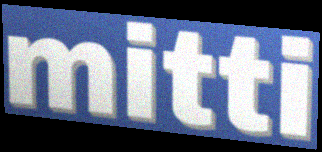
mitti